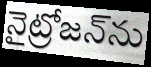
నైట్రోజన్‌ను